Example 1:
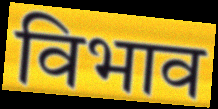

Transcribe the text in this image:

विभाव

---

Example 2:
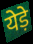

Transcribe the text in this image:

येड़े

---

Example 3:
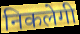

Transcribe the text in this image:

निकलेगी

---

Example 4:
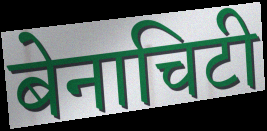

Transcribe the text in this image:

बेनाचिटी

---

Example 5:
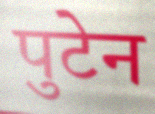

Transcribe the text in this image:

पुटेन